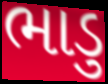
ભાડુ